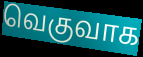
வெகுவாக